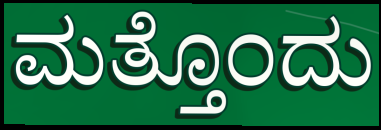
ಮತ್ತೊಂದು